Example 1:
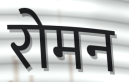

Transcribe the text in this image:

रोमन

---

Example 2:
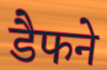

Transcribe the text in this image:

डैफने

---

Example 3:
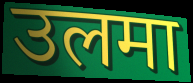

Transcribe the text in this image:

उलमा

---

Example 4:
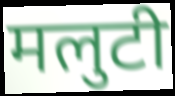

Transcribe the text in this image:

मलुटी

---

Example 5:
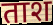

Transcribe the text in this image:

ताश